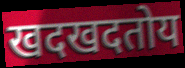
खदखदतोय